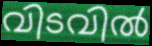
വിടവിൽ